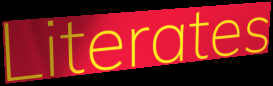
Literates